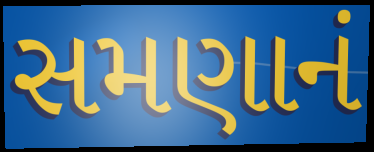
સમણાનં